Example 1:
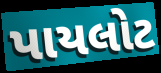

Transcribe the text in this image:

પાયલોટ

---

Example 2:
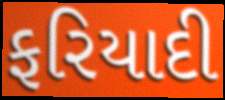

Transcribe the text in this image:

ફરિયાદી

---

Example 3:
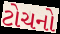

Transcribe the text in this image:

ટોચનો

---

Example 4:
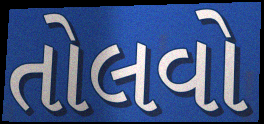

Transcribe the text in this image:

તોલવો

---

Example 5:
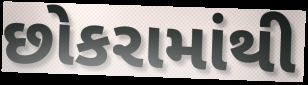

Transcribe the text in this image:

છોકરામાંથી